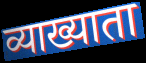
व्याख्याता